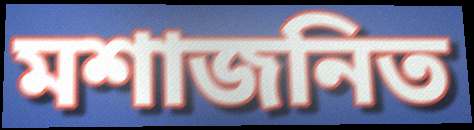
মশাজনিত